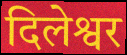
दिलेश्वर